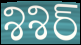
శిశిర్